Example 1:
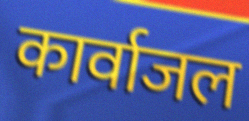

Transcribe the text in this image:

कार्वाजल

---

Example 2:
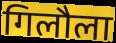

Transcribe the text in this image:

गिलौला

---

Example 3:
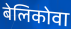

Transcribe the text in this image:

बेलिकोवा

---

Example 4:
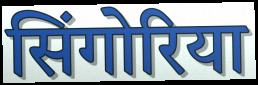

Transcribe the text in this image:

सिंगोरिया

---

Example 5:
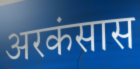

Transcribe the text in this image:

अरकंसास